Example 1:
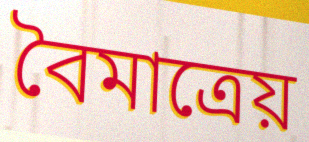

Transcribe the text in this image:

বৈমাত্রেয়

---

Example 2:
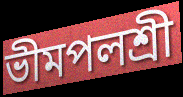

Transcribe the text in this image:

ভীমপলশ্রী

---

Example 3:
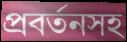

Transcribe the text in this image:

প্রবর্তনসহ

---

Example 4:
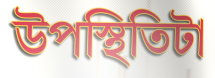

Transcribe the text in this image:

উপস্থিতিটা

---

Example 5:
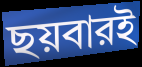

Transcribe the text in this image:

ছয়বারই